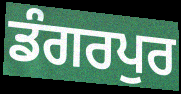
ਡੰਗਰਪੁਰ